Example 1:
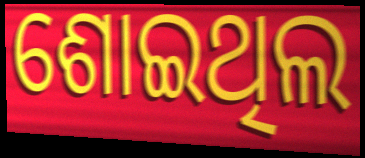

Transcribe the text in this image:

ଶୋଇଥିଲ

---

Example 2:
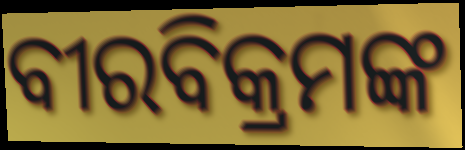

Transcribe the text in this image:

ବୀରବିକ୍ରମଙ୍କ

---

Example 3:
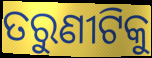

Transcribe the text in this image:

ତରୁଣୀଟିକୁ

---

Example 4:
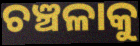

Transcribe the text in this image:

ଚଞ୍ଚଳାକୁ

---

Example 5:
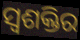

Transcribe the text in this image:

ସ୍ଵଶକ୍ତିର